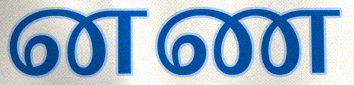
னண